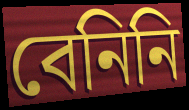
বেনিনি